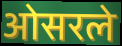
ओसरले